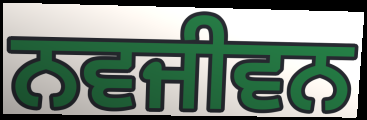
ਨਵਜੀਵਨ